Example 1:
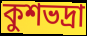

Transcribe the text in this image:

কুশভদ্রা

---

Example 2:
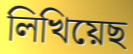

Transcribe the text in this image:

লিখিয়েছ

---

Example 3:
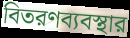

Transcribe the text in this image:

বিতরণব্যবস্থার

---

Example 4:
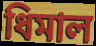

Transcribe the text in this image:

ধিমাল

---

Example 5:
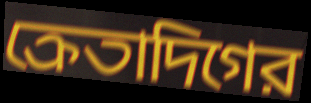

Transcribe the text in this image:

ক্রেতাদিগের